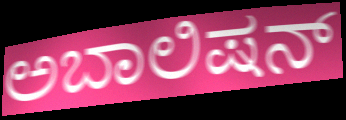
ಅಬಾಲಿಷನ್